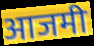
आजमी